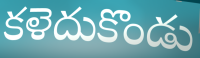
కళెదుకొండు